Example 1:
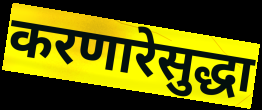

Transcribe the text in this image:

करणारेसुद्धा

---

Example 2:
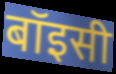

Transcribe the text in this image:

बॉइसी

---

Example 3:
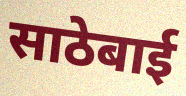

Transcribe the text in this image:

साठेबाई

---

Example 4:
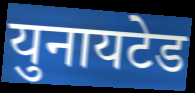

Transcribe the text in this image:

युनायटेड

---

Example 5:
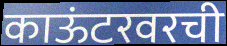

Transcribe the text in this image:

काऊंटरवरची